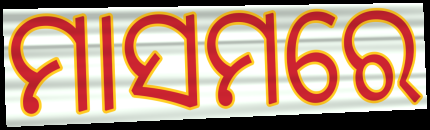
ମାସମରେ